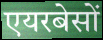
एयरबेसों